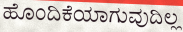
ಹೊಂದಿಕೆಯಾಗುವುದಿಲ್ಲ